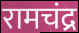
रामचंद्र